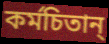
কর্মচিতান্